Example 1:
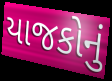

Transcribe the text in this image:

યાજકોનું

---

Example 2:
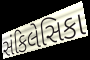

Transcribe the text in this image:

સંકિલેસિકા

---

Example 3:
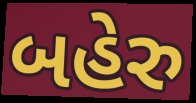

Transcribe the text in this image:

બહેરુ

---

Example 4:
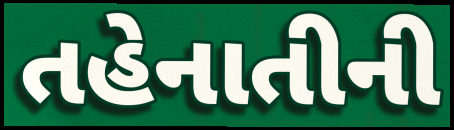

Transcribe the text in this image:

તહેનાતીની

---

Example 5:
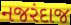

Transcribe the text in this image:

નજરંદાજ